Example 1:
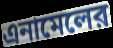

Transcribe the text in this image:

এনামেলের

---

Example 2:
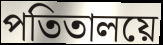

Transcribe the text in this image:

পতিতালয়ে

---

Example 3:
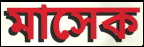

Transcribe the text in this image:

মাসেক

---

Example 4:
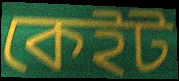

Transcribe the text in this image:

কেইট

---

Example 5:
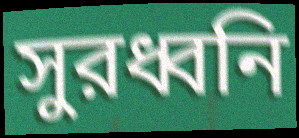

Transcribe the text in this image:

সুরধ্বনি